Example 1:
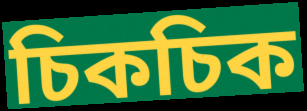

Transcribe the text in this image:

চিকচিক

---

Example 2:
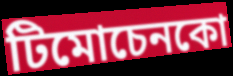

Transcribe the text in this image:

টিমোচেনকো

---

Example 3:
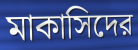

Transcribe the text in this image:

মাকাসিদের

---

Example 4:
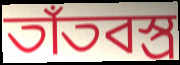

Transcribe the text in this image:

তাঁতবস্ত্র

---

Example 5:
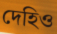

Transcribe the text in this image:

দেহিও